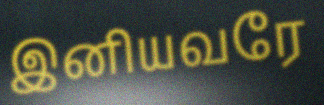
இனியவரே